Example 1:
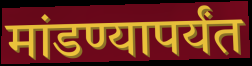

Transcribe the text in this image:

मांडण्यापर्यंत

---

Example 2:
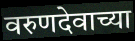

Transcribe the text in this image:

वरुणदेवाच्या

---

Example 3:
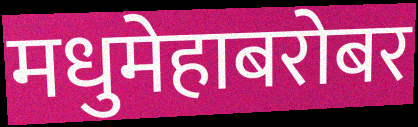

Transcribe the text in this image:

मधुमेहाबरोबर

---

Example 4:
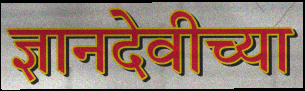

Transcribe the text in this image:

ज्ञानदेवीच्या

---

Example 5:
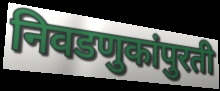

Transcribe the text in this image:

निवडणुकांपुरती